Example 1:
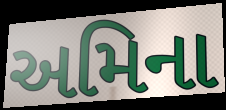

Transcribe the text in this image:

અમિના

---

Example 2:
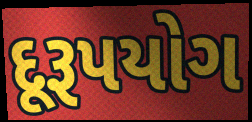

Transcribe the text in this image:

દૂરૂપયોગ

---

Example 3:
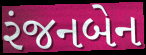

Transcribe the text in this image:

રંજનબેન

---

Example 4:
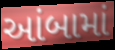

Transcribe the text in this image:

આંબામાં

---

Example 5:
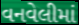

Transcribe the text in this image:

વનવેલીમાં